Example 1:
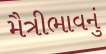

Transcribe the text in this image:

મૈત્રીભાવનું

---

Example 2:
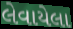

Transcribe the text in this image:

લેવાયેલા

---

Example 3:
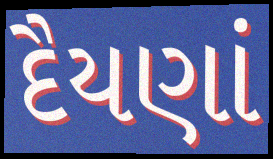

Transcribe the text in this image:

દૈયણાં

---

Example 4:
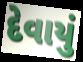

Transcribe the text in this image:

દેવાયું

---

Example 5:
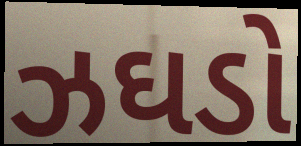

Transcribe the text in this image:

ઝઘડો